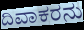
ದಿವಾಕರನು